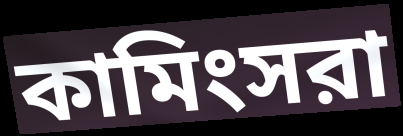
কামিংসরা